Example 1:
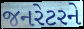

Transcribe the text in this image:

જનરેટરને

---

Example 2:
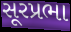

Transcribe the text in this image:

સૂરપ્રભા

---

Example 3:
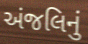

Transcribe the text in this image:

અંજલિનું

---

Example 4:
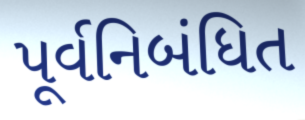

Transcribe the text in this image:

પૂર્વનિબંધિત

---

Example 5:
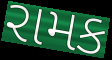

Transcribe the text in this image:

રામક